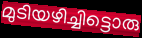
മുടിയഴിച്ചിട്ടൊരു